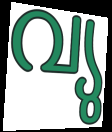
വ്യു